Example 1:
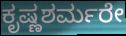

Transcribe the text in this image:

ಕೃಷ್ಣಶರ್ಮರೇ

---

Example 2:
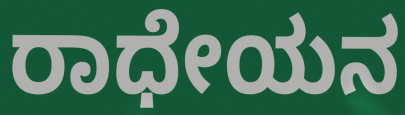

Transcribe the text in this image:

ರಾಧೇಯನ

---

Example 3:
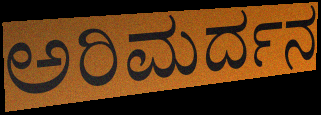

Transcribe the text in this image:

ಅರಿಮರ್ದನ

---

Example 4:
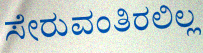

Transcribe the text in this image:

ಸೇರುವಂತಿರಲಿಲ್ಲ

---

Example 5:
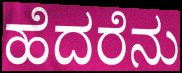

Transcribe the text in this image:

ಹೆದರೆನು